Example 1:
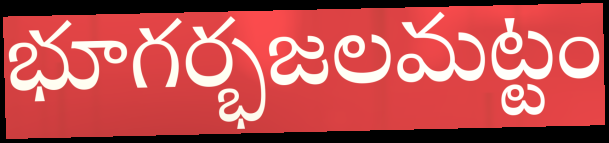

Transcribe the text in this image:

భూగర్భజలమట్టం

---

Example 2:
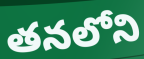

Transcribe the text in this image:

తనలోని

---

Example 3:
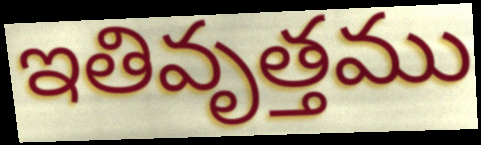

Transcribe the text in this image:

ఇతివృత్తము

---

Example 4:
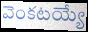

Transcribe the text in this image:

వెంకటయ్యే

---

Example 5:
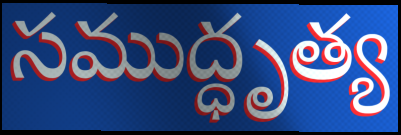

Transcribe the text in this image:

సముద్ధృత్య